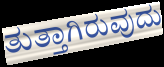
ತುತ್ತಾಗಿರುವುದು